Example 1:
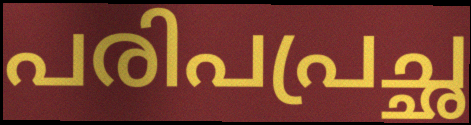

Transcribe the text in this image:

പരിപപ്രച്ഛ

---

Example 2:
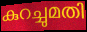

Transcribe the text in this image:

കുറച്ചുമതി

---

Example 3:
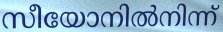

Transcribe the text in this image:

സീയോനിൽനിന്ന്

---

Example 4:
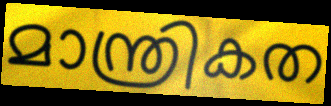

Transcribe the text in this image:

മാന്ത്രികത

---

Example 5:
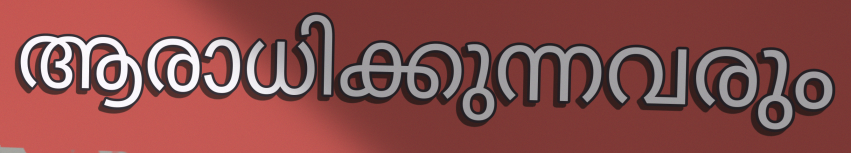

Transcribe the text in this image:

ആരാധിക്കുന്നവരും